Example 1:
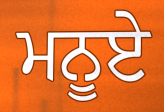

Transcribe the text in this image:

ਮਨੂਏ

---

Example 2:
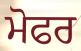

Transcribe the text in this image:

ਮੋਫਰ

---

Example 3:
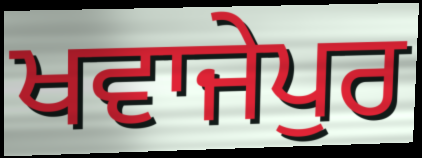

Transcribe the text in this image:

ਖਵਾਜੇਪੁਰ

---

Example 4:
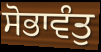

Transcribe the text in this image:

ਸੋਭਾਵੰਤੁ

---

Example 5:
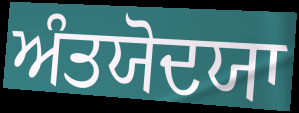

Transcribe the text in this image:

ਅੰਤਯੋਦਯਾ